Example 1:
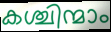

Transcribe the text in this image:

കശ്ചിന്മാം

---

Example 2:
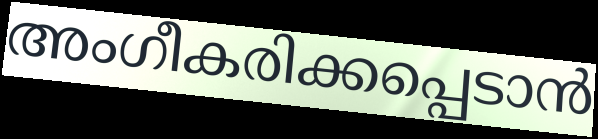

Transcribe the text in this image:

അംഗീകരിക്കപ്പെടാൻ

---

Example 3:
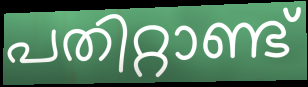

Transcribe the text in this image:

പതിറ്റാണ്ട്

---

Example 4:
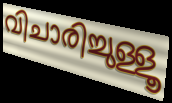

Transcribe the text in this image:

വിചാരിച്ചുള്ളൂ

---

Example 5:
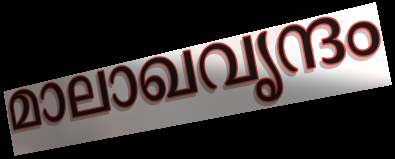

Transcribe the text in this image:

മാലാഖവൃന്ദം